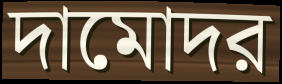
দামোদর